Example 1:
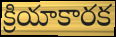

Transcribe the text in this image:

క్రియాకారక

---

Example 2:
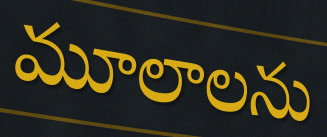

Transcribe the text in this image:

మూలాలను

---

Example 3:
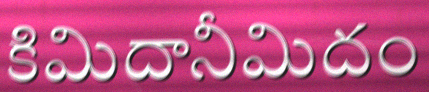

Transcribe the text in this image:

కిమిదానీమిదం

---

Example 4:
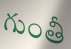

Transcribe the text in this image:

గుంతీ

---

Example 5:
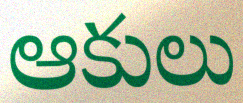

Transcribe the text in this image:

ఆకులు